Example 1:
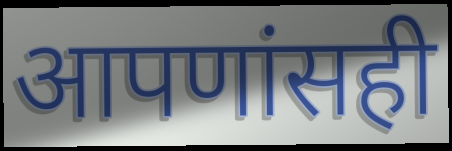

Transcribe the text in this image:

आपणांसही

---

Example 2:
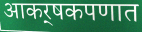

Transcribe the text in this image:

आकर्षकपणात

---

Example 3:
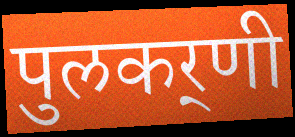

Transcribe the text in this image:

पुलकर्णी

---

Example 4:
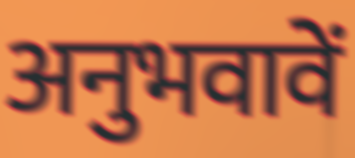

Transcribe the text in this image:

अनुभवावें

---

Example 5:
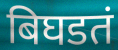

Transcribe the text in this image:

बिघडतं